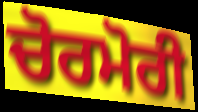
ਚੋਰਮੋਰੀ